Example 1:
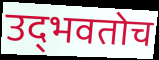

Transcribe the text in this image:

उद्भवतोच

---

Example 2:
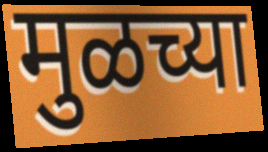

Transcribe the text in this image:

मुळच्या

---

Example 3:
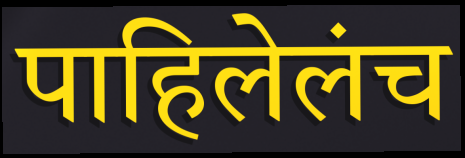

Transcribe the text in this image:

पाहिलेलंच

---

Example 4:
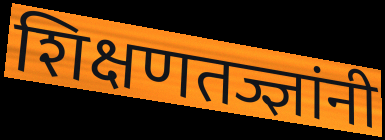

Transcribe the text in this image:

शिक्षणतज्ज्ञांनी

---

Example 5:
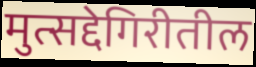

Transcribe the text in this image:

मुत्सद्देगिरीतील